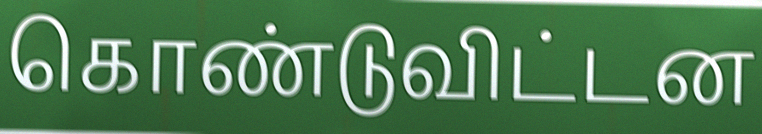
கொண்டுவிட்டன